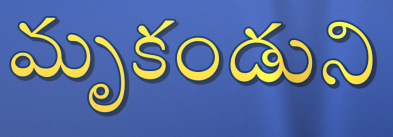
మృకండుని